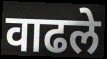
वाढले